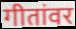
गीतांवर